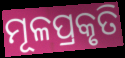
ମୂଳପ୍ରକୃତି